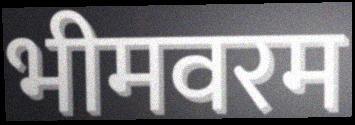
भीमवरम